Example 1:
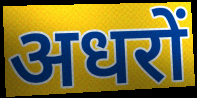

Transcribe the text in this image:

अधरों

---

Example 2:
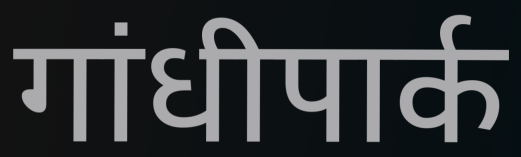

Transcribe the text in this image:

गांधीपार्क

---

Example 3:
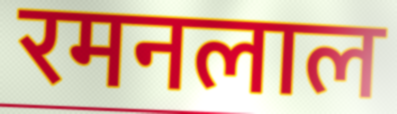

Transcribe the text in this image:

रमनलाल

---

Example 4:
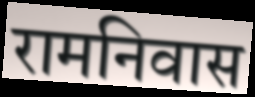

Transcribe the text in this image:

रामनिवास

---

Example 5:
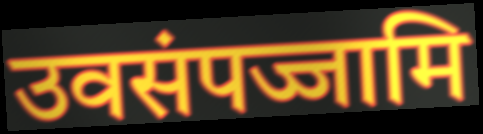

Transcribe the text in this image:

उवसंपज्जामि